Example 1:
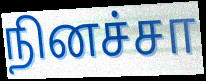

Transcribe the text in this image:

நினச்சா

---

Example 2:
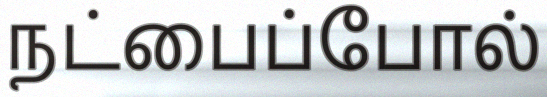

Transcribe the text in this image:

நட்பைப்போல்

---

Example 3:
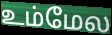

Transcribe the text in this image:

உம்மேல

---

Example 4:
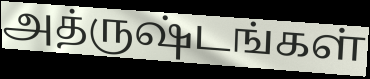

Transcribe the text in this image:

அத்ருஷ்டங்கள்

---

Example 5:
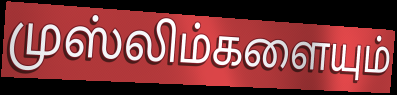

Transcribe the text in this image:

முஸ்லிம்களையும்